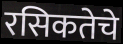
रसिकतेचे